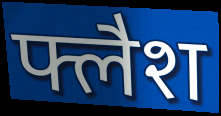
फ्लैश